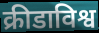
क्रीडाविश्व